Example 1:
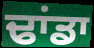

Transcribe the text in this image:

ਢਾਂਡਾ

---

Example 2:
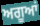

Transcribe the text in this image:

ਅਗੂਆਂ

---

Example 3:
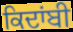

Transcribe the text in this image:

ਕਿਦਾਂਬੀ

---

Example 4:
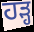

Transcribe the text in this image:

ਹੜ੍ਹ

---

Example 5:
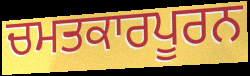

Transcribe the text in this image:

ਚਮਤਕਾਰਪੂਰਨ